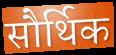
सौर्थिक